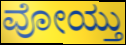
ವೋಯ್ತು